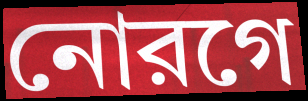
নোরগে